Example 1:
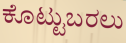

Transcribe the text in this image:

ಕೊಟ್ಟುಬರಲು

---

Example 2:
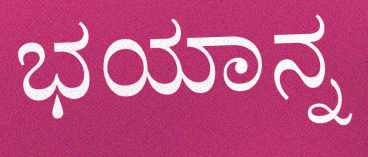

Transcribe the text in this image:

ಭಯಾನ್ನ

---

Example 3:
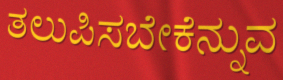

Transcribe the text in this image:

ತಲುಪಿಸಬೇಕೆನ್ನುವ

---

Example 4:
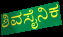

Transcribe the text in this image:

ಶಿವಸೈನಿಕ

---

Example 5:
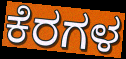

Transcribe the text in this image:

ಕೆರಗಳ